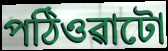
পঠিওৱাটো